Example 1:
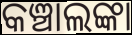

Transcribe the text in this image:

କଞ୍ଚାଲଙ୍କା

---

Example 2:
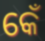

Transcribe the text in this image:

କେଁ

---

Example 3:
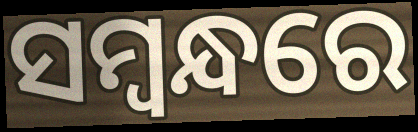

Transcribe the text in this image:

ସମ୍ବନ୍ଧରେ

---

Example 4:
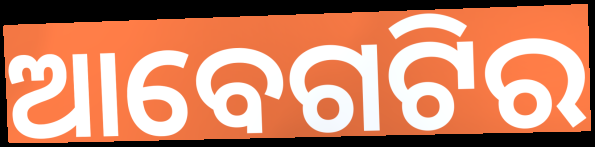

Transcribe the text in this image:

ଆବେଗଟିର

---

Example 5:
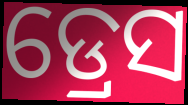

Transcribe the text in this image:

ଡ୍ରେସ